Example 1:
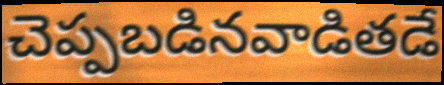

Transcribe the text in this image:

చెప్పబడినవాడితడే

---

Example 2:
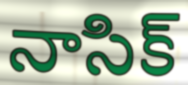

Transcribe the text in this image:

నాసిక్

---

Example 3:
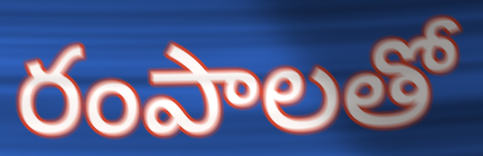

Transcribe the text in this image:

రంపాలతో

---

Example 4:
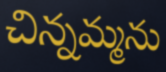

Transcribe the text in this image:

చిన్నమ్మను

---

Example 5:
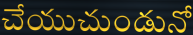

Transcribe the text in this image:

చేయుచుండునో